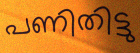
പണിതിട്ടു